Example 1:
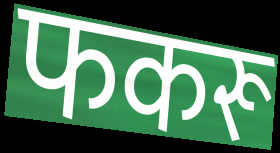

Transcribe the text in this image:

फकरू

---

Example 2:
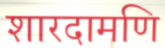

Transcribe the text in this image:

शारदामणि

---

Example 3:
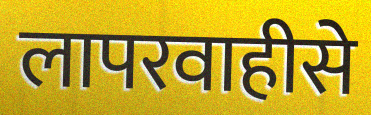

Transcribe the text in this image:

लापरवाहीसे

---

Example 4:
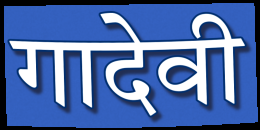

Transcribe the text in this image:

गादेवी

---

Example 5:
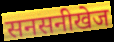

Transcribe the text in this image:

सनसनीखेज